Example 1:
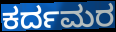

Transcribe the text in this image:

ಕರ್ದಮರ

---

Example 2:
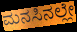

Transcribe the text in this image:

ಮನಸಿನಲ್ಲೇ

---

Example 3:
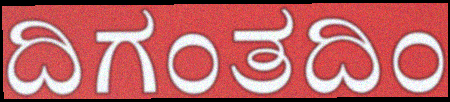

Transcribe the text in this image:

ದಿಗಂತದಿಂ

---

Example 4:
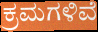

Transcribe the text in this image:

ಕ್ರಮಗಳಿವೆ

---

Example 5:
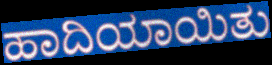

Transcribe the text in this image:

ಹಾದಿಯಾಯಿತು